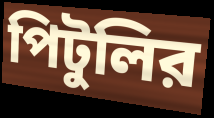
পিটুলির